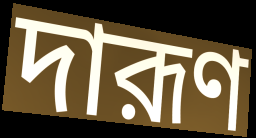
দারূণ